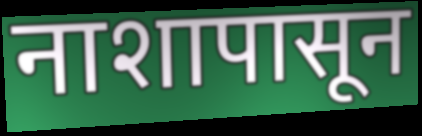
नाशापासून